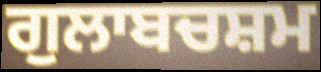
ਗੁਲਾਬਚਸ਼ਮ